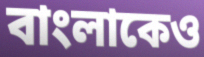
বাংলাকেও